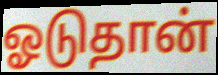
ஓடுதான்